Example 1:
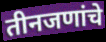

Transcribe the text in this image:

तीनजणांचे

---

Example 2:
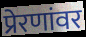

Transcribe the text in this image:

प्रेरणांवर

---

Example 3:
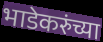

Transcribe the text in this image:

भाडेकरुंच्या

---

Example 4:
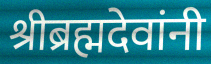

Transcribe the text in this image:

श्रीब्रह्मदेवांनी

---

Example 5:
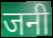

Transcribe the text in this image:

जनी